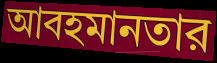
আবহমানতার